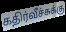
கதிர்வீச்சுக்கு